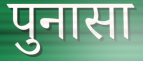
पुनासा